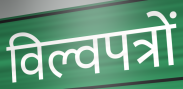
विल्वपत्रों